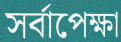
সর্বাপেক্ষা